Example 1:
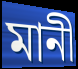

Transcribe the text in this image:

মানী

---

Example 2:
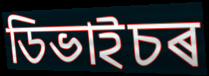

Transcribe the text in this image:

ডিভাইচৰ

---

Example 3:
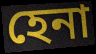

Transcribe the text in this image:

হেনা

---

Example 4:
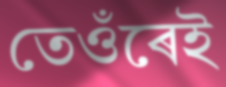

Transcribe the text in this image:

তেওঁৰেই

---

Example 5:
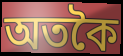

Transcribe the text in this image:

অতকৈ